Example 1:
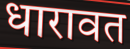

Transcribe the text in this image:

धारावत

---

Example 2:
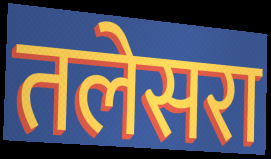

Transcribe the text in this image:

तलेसरा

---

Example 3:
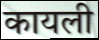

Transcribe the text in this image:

कायली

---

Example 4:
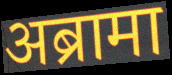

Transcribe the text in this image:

अब्रामा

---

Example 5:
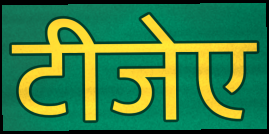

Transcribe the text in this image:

टीजेए